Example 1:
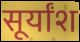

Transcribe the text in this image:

सूर्यांश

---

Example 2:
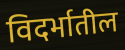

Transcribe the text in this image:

विदर्भातील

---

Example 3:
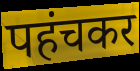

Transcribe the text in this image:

पहंचकर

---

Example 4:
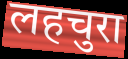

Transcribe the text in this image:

लहचुरा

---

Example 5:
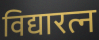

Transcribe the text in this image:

विद्यारत्न